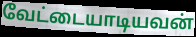
வேட்டையாடியவன்